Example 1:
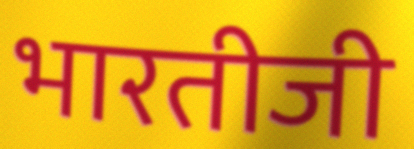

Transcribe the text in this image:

भारतीजी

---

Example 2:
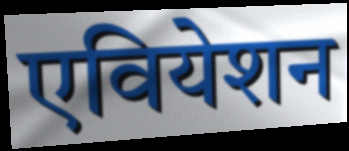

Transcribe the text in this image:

एवियेशन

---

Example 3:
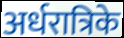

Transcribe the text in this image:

अर्धरात्रिके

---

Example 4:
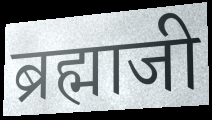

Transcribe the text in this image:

ब्रह्माजी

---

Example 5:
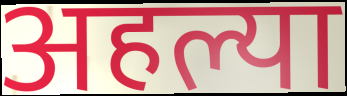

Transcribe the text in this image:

अहल्या